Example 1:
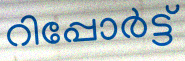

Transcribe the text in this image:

റിപ്പോർട്ട്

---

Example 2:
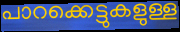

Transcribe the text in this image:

പാറക്കെട്ടുകളുള്ള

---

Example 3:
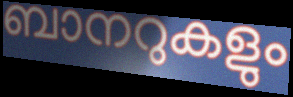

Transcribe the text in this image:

ബാനറുകളും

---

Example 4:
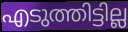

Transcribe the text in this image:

എടുത്തിട്ടില്ല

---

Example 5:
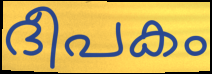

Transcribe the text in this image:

ദീപകം